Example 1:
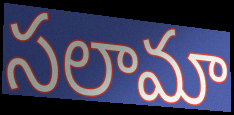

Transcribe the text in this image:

సలామా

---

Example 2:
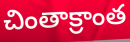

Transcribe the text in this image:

చింతాక్రాంత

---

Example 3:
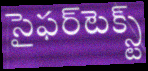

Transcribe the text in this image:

సైఫర్‌టెక్స్ట్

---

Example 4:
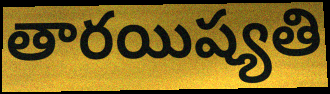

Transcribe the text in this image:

తారయిష్యతి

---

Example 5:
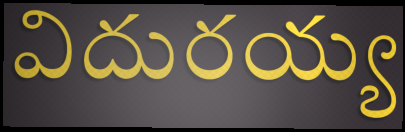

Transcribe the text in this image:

విదురయ్య